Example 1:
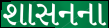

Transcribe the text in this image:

શાસનના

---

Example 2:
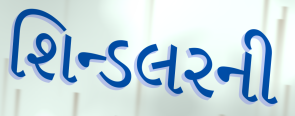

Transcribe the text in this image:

શિન્ડલરની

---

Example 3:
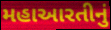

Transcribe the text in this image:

મહાઆરતીનું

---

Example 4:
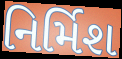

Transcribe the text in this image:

નિર્મિશ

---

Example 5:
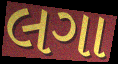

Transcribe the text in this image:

લગા